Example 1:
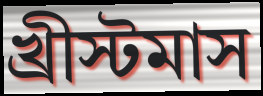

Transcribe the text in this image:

খ্রীস্টমাস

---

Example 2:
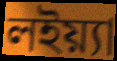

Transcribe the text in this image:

লইয়্যা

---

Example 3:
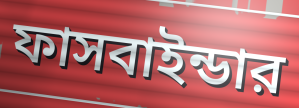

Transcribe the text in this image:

ফাসবাইন্ডার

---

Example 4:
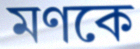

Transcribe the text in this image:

মণকে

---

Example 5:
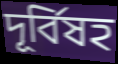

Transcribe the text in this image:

দূর্বিষহ